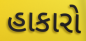
હાકારો